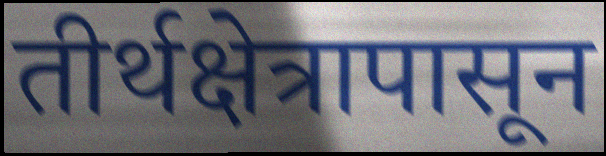
तीर्थक्षेत्रापासून